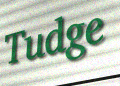
Tudge